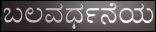
ಬಲವರ್ಧನೆಯ